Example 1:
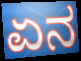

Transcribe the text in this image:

ಏನ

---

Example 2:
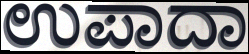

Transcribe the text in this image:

ಉಪಾದಾ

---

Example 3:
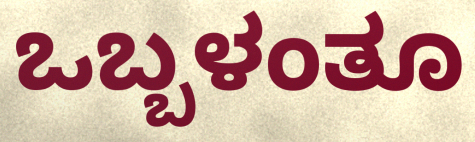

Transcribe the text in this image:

ಒಬ್ಬಳಂತೂ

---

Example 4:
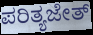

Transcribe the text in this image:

ಪರಿತ್ಯಜೇತ್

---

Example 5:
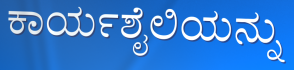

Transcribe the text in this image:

ಕಾರ್ಯಶೈಲಿಯನ್ನು